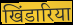
खिंडारिया